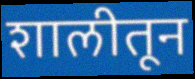
शालीतून